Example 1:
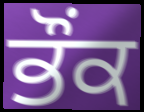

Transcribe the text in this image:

ਭੌਂਕ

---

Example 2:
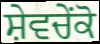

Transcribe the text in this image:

ਸ਼ੇਵਚੇਂਕੋ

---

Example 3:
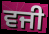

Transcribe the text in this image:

ਵਜੀ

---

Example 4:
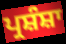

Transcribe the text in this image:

ਪ੍ਰਸ਼ੰਸ਼ਾ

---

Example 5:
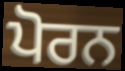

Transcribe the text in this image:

ਪੋਰਨ